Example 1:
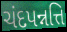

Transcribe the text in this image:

ચંદપન્નત્તિ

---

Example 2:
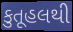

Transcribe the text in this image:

કુતૂહલથી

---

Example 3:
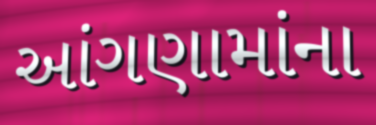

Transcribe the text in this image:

આંગણામાંના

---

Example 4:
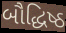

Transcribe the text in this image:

બૌદ્ધિષ્ઠ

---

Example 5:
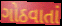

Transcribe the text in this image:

ગોઠવાતાં